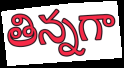
తిన్నగా